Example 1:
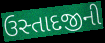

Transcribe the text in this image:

ઉસ્તાદજીની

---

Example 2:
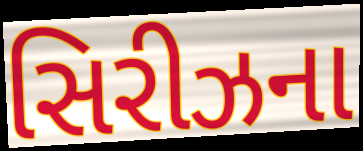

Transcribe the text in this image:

સિરીઝના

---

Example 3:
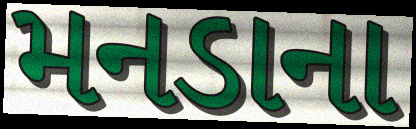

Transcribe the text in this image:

મનડાના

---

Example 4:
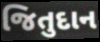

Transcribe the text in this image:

જિતુદાન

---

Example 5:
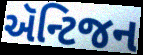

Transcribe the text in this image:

ઍન્ટિજન